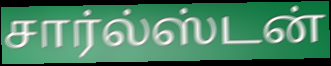
சார்ல்ஸ்டன்